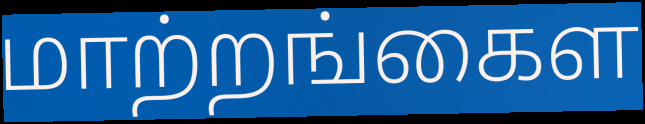
மாற்றங்கைள